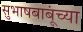
सुभाषबाबूंच्या